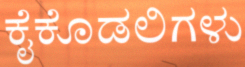
ಕೈಕೊಡಲಿಗಳು